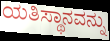
ಯತಿಸ್ಥಾನವನ್ನು